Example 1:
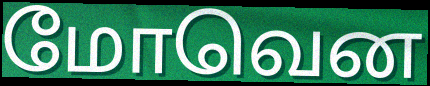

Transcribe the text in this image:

மோவென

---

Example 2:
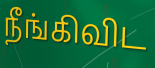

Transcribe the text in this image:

நீங்கிவிட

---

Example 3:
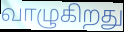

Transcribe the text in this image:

வாழுகிறது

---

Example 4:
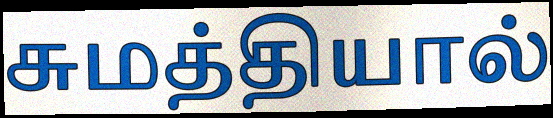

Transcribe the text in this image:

சுமத்தியால்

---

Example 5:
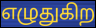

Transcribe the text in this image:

எழுதுகிற